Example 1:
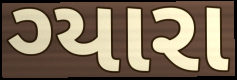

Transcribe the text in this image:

ગ્યારા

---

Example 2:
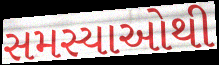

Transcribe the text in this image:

સમસ્યાઓથી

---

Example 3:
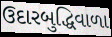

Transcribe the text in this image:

ઉદારબુદ્ધિવાળા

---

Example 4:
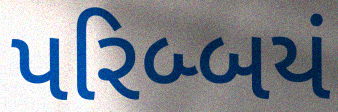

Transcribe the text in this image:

પરિબ્બયં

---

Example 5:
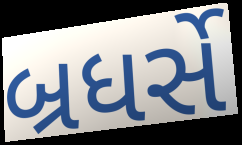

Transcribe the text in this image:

બ્રધર્સે